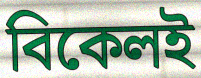
বিকেলই